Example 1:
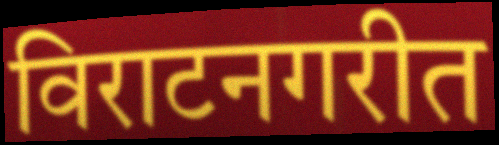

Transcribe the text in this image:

विराटनगरीत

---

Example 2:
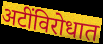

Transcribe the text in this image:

अटींविरोधात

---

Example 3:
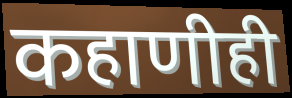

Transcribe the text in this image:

कहाणीही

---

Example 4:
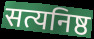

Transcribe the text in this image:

सत्यनिष्ठ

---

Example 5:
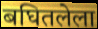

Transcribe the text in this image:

बघितलेला